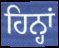
ਹਿਨ੍ਹਾਂ